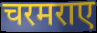
चरमराए